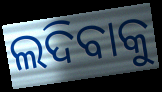
ଲଦିବାକୁ